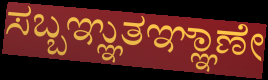
ಸಬ್ಬಞ್ಞುತಞ್ಞಾಣೇ